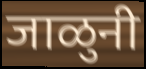
जाळुनी